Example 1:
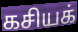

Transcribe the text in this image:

கசியக்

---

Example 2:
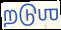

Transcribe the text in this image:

றடுஶ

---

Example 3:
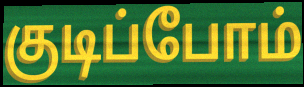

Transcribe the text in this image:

குடிப்போம்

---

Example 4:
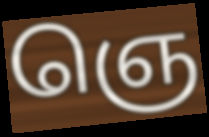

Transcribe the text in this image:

ஞெ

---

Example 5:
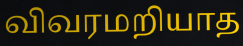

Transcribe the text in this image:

விவரமறியாத